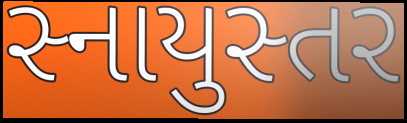
સ્નાયુસ્તર